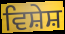
ਵਿਸ਼ੇਸ਼